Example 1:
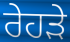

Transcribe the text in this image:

ਰੇਹੜੇ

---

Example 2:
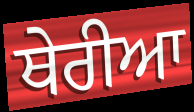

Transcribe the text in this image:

ਥੇਰੀਆ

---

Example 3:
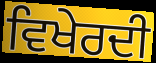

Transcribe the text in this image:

ਵਿਖੇਰਦੀ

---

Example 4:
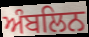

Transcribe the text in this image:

ਅੰਬਲਿਨ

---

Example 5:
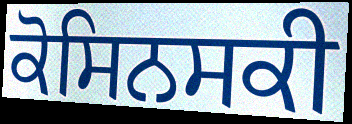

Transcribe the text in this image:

ਕੋਸਿਨਸਕੀ